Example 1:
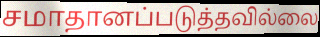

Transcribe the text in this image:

சமாதானப்படுத்தவில்லை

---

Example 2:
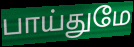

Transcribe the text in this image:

பாய்துமே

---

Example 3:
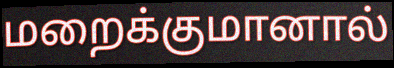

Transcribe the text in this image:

மறைக்குமானால்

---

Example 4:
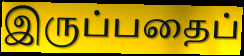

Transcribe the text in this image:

இருப்பதைப்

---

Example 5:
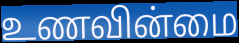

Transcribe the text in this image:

உணவின்மை